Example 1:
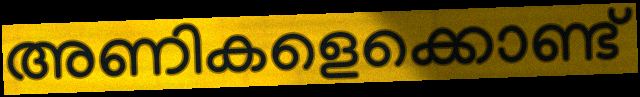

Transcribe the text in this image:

അണികളെക്കൊണ്ട്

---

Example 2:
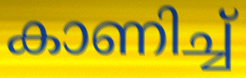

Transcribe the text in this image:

കാണിച്ച്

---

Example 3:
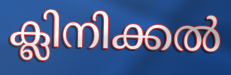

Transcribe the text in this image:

ക്ലിനിക്കൽ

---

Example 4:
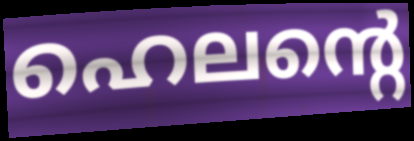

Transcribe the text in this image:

ഹെലന്റെ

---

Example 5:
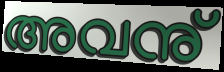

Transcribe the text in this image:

അവനു്